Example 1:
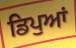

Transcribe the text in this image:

ਡਿਪੁਆਂ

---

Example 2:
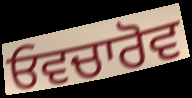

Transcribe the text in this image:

ਓਵਚਾਰੋਵ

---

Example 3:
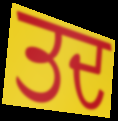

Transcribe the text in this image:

ਤਦ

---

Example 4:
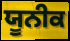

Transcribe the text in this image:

ਯੂਨੀਕ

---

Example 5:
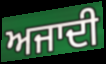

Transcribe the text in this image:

ਅਜਾਦੀ